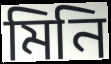
মিনি